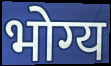
भोग्य